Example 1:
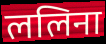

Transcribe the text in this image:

ललिना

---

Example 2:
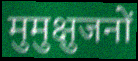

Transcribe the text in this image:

मुमुक्षुजनों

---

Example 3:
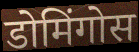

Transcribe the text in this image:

डोमिंगोस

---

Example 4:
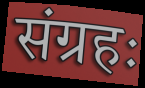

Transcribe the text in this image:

संग्रहः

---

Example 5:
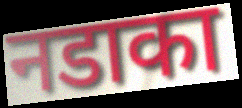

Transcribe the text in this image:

नडाका